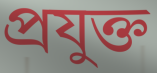
প্রযুক্ত